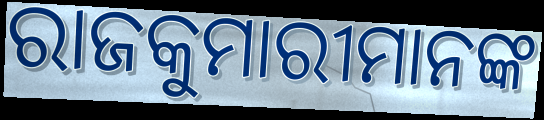
ରାଜକୁମାରୀମାନଙ୍କ